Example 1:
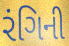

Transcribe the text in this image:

રંગિની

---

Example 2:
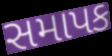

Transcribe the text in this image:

સમાપક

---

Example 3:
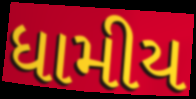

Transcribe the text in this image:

ધામીય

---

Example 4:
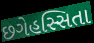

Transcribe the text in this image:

છગેહસ્સિતા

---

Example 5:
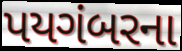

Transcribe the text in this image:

પયગંબરના